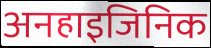
अनहाइजिनिक